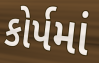
કોર્પમાં